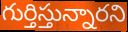
గుర్తిస్తున్నారని